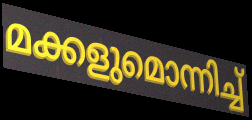
മക്കളുമൊന്നിച്ച്